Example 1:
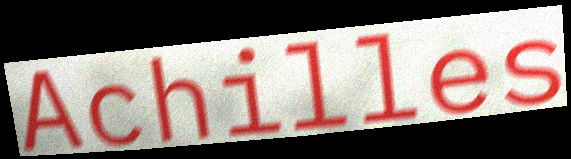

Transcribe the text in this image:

Achilles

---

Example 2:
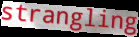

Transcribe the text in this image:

strangling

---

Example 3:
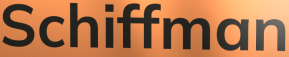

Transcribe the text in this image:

Schiffman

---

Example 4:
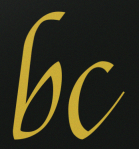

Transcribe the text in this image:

bc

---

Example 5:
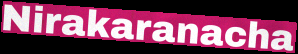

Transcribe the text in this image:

Nirakaranacha